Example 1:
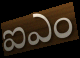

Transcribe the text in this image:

ఐఎం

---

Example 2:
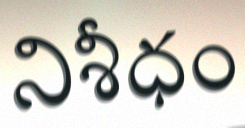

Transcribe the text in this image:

నిశీధం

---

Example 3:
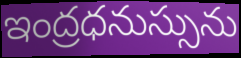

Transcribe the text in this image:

ఇంద్రధనుస్సును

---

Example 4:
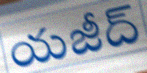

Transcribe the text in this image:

యజీద్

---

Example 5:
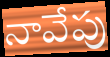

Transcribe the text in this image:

నావేపు